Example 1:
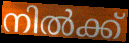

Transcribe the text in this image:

നിൽക്ക്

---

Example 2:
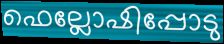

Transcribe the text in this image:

ഫെല്ലോഷിപ്പോടു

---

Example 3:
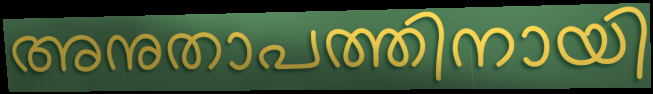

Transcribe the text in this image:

അനുതാപത്തിനായി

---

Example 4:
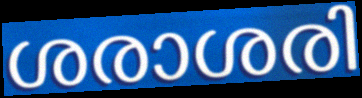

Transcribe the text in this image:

ശരാശരി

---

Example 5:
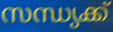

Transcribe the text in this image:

സന്ധ്യക്ക്